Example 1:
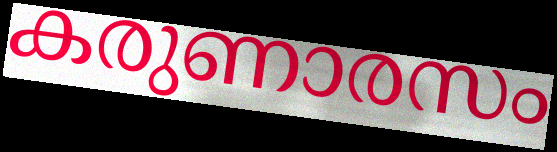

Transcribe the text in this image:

കരുണാരസം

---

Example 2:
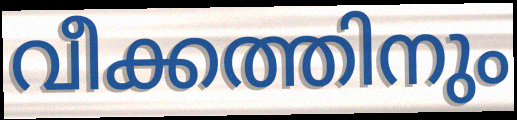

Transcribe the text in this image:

വീക്കത്തിനും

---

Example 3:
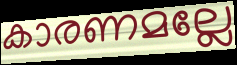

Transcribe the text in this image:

കാരണമല്ലേ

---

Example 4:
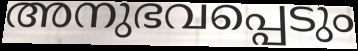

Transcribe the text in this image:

അനുഭവപ്പെടും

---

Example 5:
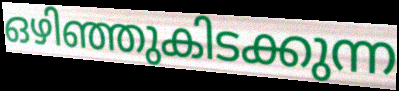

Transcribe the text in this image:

ഒഴിഞ്ഞുകിടക്കുന്ന